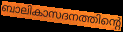
ബാലികാസദനത്തിന്റെ